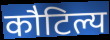
कौटिल्य